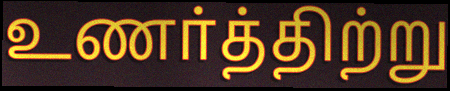
உணர்த்திற்று